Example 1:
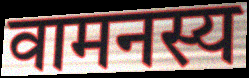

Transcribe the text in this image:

वामनस्य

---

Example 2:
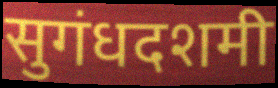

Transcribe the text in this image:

सुगंधदशमी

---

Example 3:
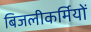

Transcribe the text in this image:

बिजलीकर्मियों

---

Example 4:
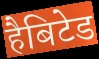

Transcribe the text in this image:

हैबिटेड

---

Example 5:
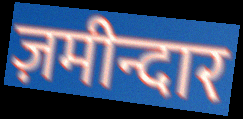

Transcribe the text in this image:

ज़मीन्दार